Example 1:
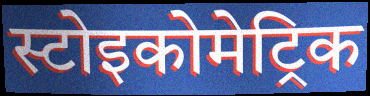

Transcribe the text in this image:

स्टोइकोमेट्रिक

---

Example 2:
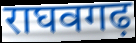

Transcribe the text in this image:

राघवगढ़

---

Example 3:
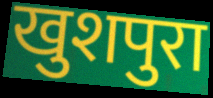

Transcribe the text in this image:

खुशपुरा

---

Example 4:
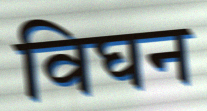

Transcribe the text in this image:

विघन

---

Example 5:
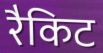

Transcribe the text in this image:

रैकिट